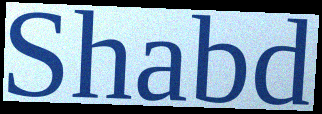
Shabd